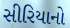
સીરિયાનો